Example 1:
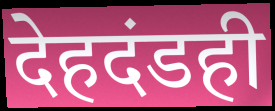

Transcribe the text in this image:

देहदंडही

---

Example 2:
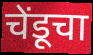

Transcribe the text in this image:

चेंडूचा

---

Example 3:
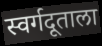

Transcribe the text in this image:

स्वर्गदूताला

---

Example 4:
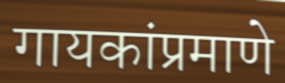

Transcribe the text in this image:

गायकांप्रमाणे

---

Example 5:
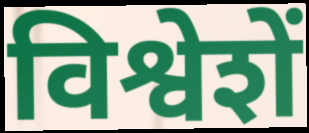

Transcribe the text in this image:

विश्वेशें